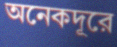
অনেকদূরে